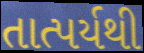
તાત્પર્યથી